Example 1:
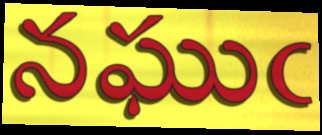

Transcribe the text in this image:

నఘుఁ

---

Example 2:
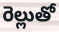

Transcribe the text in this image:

రెల్లుతో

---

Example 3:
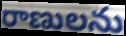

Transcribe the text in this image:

రాణులను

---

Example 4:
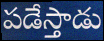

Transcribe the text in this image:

పడేస్తాడు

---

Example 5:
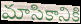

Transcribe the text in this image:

మాసికానికి